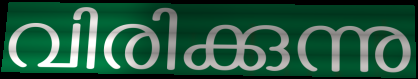
വിരിക്കുന്നു